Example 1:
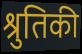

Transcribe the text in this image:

श्रुतिकी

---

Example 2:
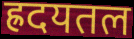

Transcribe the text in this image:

ह्रदयतल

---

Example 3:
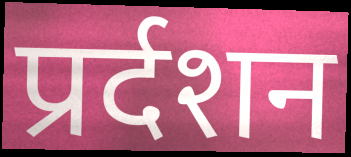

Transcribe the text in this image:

प्रर्दशन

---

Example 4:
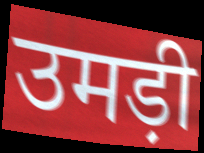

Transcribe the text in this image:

उमड़ी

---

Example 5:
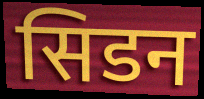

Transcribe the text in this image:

सिडन